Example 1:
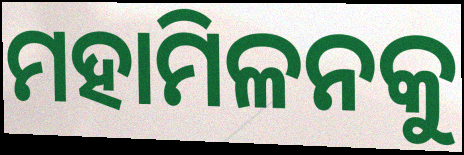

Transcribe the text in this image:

ମହାମିଳନକୁ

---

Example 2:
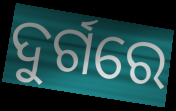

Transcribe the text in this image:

ଦୁର୍ଗରେ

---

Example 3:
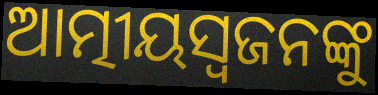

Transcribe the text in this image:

ଆତ୍ମୀୟସ୍ୱଜନଙ୍କୁ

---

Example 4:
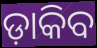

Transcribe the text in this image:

ଡ଼ାକିବ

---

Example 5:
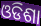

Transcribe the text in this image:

ଓଡିଶା